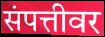
संपत्तीवर